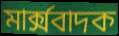
মাৰ্ক্সবাদক